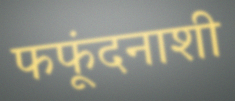
फफूंदनाशी